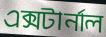
এক্সটার্নাল